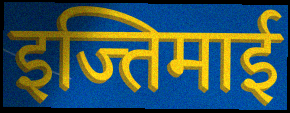
इज्तिमाई